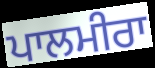
ਪਾਲਮੀਰਾ